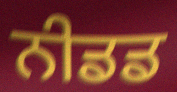
ਨੀਡਡ